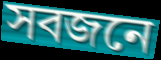
সবজনে